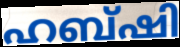
ഹബ്ഷി